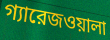
গ্যারেজওয়ালা